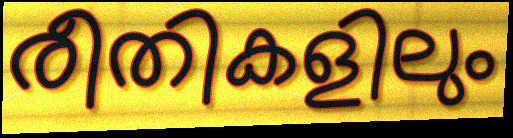
രീതികളിലും